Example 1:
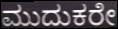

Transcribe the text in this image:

ಮುದುಕರೇ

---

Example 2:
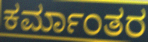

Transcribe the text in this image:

ಕರ್ಮಾಂತರ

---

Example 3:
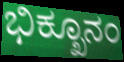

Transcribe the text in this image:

ಭಿಕ್ಖೂನಂ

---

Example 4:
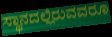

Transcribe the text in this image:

ಸ್ಥಾನದಲ್ಲಿರುವವರೂ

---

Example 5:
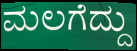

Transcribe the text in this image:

ಮಲಗೆದ್ದು